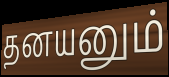
தனயனும்